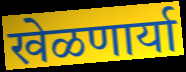
खेळणार्या